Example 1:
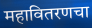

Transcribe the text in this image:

महावितरणचा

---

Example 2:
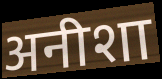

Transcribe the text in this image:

अनीशा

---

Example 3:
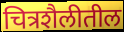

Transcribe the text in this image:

चित्रशैलीतील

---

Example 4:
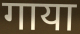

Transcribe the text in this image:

गाया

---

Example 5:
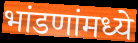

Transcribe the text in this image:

भांडणांमध्ये